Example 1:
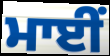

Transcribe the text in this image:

ਮਾਈਂ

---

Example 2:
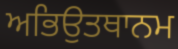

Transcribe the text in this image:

ਅਭਿਉਤਥਾਨਮ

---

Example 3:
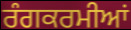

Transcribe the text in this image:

ਰੰਗਕਰਮੀਆਂ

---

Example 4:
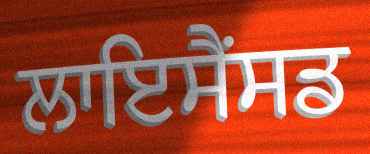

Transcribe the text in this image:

ਲਾਇਸੈਂਸਡ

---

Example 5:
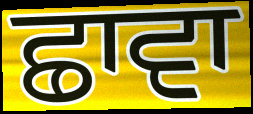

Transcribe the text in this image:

ਛਾਵਾ